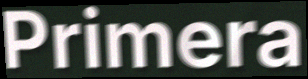
Primera